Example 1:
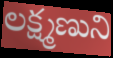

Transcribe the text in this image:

లక్ష్మణుని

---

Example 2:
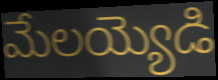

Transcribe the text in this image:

మేలయ్యెడి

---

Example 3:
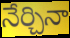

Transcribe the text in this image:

నేర్చినా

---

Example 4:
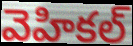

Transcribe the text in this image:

వెహికల్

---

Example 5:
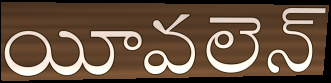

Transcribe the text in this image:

యీవలెన్